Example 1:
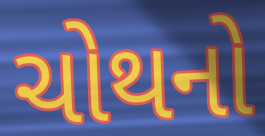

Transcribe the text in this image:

ચોથનો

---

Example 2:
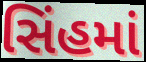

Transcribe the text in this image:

સિંહમાં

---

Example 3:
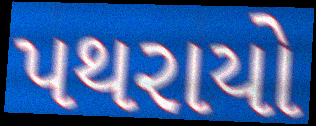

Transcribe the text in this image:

પથરાયો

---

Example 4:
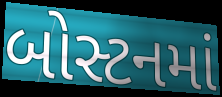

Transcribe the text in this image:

બોસ્ટનમાં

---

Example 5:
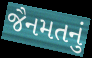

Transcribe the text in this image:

જૈનમતનું